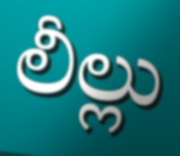
లీల్లు